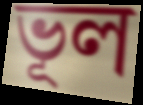
ভূল